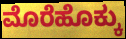
ಮೊರೆಹೊಕ್ಕು